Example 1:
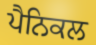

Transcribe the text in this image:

ਪੈਨਿਕਲ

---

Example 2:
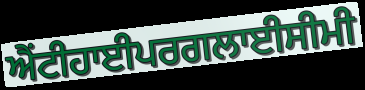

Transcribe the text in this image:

ਐਂਟੀਹਾਈਪਰਗਲਾਈਸੀਮੀ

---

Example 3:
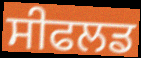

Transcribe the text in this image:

ਸੀਫਲਡ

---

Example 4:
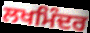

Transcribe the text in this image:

ਲਖਮਿੰਦਰ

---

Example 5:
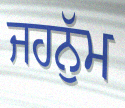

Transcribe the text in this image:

ਜਹਨੁੱਮ